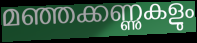
മഞ്ഞക്കണ്ണുകളും